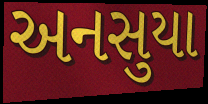
અનસુયા